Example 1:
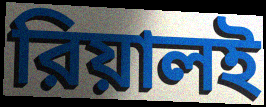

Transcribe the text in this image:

রিয়ালই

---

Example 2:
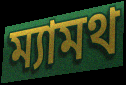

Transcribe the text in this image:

ম্যামথ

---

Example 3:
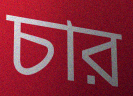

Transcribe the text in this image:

চার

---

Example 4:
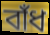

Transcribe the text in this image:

বাঁধ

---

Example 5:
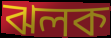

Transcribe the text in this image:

ঝলক